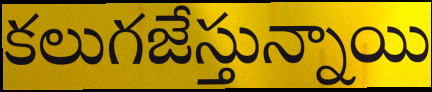
కలుగజేస్తున్నాయి